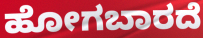
ಹೋಗಬಾರದೆ